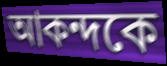
আকন্দকে